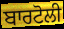
ਬਾਰਟੋਲੀ